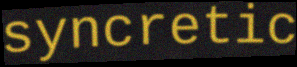
syncretic